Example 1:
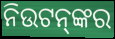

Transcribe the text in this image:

ନିଉଟନ୍‌ଙ୍କର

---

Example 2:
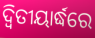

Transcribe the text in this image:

ଦ୍ବିତୀୟାର୍ଦ୍ଧରେ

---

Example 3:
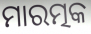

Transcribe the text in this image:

ମାରତ୍ମକ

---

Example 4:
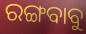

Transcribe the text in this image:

ରଙ୍ଗବାବୁ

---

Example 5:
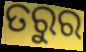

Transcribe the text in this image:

ତରୁର